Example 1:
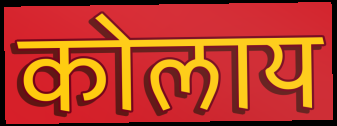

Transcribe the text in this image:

कोलाय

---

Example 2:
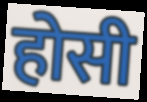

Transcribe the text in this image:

होसी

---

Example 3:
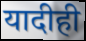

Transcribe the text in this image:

यादीही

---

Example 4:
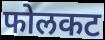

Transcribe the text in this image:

फोलकट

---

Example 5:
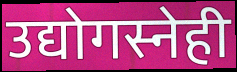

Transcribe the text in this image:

उद्योगस्नेही